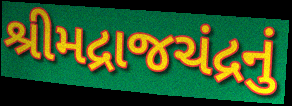
શ્રીમદ્રાજચંદ્રનું